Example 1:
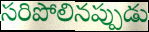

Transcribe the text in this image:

సరిపోలినప్పుడు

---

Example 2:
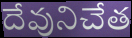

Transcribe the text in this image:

దేవునిచేత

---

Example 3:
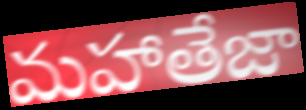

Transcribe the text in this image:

మహాతేజా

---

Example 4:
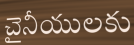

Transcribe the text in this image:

చైనీయులకు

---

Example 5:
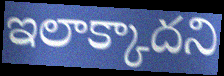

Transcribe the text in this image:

ఇలాక్కాదని